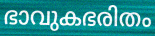
ഭാവുകഭരിതം